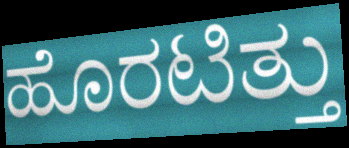
ಹೊರಟಿತ್ತು